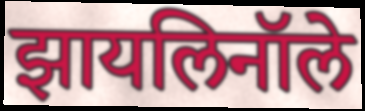
झायलिनॉले